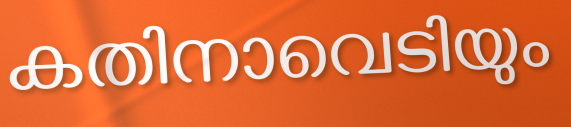
കതിനാവെടിയും